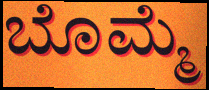
ಬೊಮ್ಮೆ